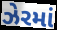
ઝેરમાં